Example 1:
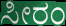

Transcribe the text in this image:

ಸೀರಂ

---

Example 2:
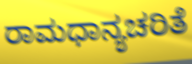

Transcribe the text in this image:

ರಾಮಧಾನ್ಯಚರಿತೆ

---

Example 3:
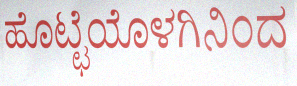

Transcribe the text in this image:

ಹೊಟ್ಟೆಯೊಳಗಿನಿಂದ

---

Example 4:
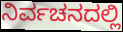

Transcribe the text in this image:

ನಿರ್ವಚನದಲ್ಲಿ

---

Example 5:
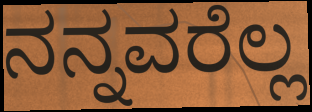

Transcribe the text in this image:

ನನ್ನವರೆಲ್ಲ